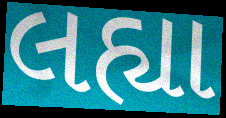
લહ્યા